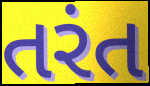
તરંત